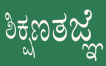
ಶಿಕ್ಷಣತಜ್ಞೆ